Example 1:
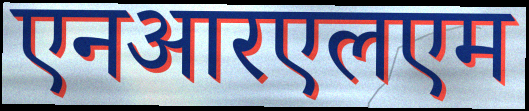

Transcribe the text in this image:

एनआरएलएम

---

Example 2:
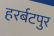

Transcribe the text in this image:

हरर्बटपुर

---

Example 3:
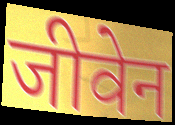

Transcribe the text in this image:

जीवेन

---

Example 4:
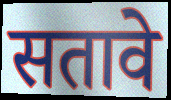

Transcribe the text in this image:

सतावे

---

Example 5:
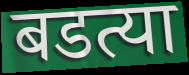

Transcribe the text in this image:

बडत्या